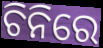
ଚିନିରେ